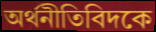
অর্থনীতিবিদকে